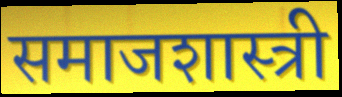
समाजशास्त्री